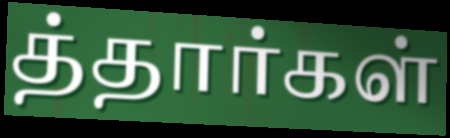
த்தார்கள்